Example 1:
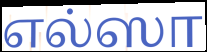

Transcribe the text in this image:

எல்ஸா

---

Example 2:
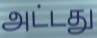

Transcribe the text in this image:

அட்டது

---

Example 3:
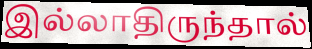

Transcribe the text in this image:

இல்லாதிருந்தால்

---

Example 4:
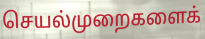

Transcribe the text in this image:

செயல்முறைகளைக்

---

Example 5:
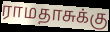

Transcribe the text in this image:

ராமதாசுக்கு